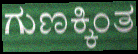
ಗುಣಕ್ಕಿಂತ